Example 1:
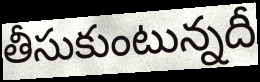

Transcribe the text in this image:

తీసుకుంటున్నదీ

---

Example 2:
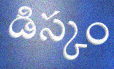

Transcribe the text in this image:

డిస్కం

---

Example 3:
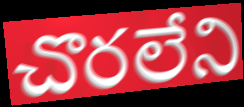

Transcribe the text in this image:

చొరలేని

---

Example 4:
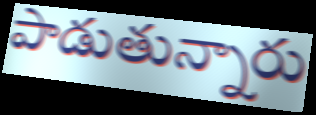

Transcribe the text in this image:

పాడుతున్నారు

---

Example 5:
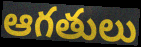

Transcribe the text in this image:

ఆగతులు